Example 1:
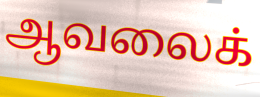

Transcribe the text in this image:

ஆவலைக்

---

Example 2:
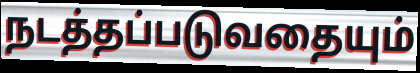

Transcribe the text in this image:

நடத்தப்படுவதையும்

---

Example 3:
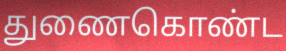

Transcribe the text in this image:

துணைகொண்ட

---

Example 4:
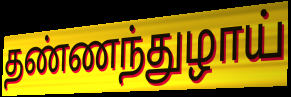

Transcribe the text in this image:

தண்ணந்துழாய்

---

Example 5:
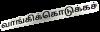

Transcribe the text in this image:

வாங்கிக்கொடுக்கச்